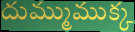
దుమ్ముముక్క